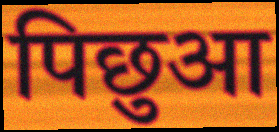
पिछुआ